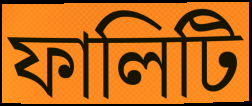
ফালিটি